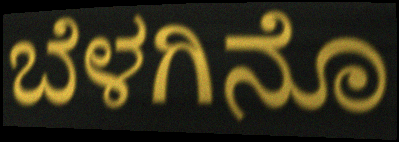
ಬೆಳಗಿನೊ